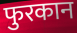
फुरकान